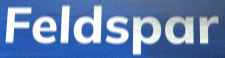
Feldspar